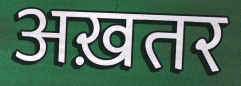
अख़तर